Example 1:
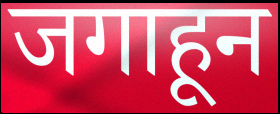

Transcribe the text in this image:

जगाहून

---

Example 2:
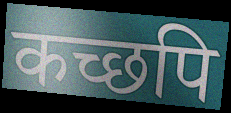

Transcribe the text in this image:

कच्छपि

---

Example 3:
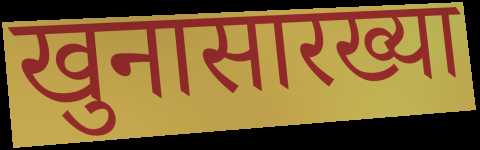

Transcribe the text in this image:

खुनासारख्या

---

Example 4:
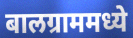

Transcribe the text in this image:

बालग्राममध्ये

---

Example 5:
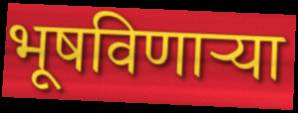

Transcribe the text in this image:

भूषविणार्‍या